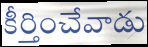
కీర్తించేవాడు